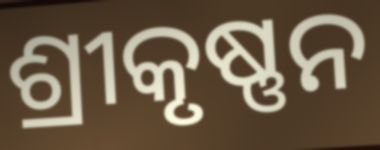
ଶ୍ରୀକୃଷ୍ଣନ